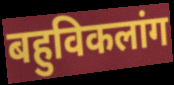
बहुविकलांग